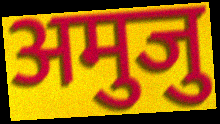
अमुजु